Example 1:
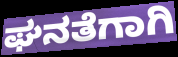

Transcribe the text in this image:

ಘನತೆಗಾಗಿ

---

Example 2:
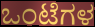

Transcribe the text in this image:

ಒಂಟೆಗಳ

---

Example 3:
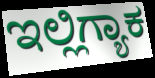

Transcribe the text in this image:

ಇಲ್ಲಿಗ್ಯಾಕ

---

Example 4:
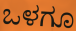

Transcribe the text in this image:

ಒಳಗೂ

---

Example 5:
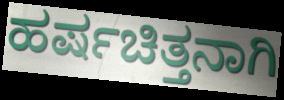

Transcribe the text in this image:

ಹರ್ಷಚಿತ್ತನಾಗಿ